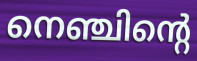
നെഞ്ചിന്റെ